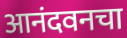
आनंदवनचा